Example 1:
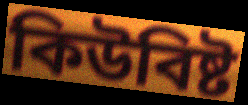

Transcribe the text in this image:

কিউবিষ্ট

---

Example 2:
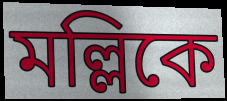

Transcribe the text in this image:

মল্লিকে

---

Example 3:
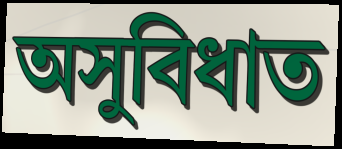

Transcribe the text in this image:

অসুবিধাত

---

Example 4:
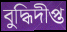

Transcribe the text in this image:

বুদ্ধিদীপ্ত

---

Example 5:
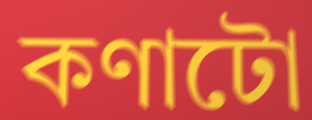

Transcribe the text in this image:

কণাটো